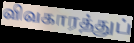
விவகாரத்துப்